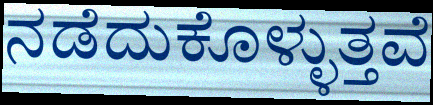
ನಡೆದುಕೊಳ್ಳುತ್ತವೆ